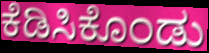
ಕೆಡಿಸಿಕೊಂಡು